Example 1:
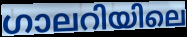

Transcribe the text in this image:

ഗാലറിയിലെ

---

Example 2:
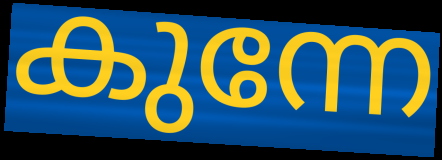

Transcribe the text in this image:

കുന്നേ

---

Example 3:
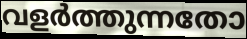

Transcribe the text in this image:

വളർത്തുന്നതോ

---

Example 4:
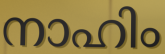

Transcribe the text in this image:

നാഹിം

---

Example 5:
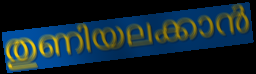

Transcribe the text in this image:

തുണിയലക്കാൻ